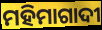
ମହିମାଗାଦୀ